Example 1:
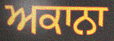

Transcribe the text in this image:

ਅਕਾਨਾ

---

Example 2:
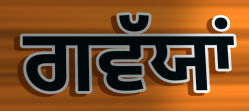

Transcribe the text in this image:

ਗਵੱਯਾਂ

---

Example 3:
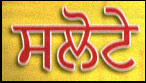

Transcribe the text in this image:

ਸਲੋਟੇ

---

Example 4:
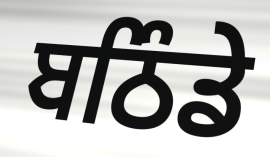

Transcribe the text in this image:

ਬਠਿੰਡੇ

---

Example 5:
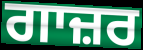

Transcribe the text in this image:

ਗਾਜ਼ਰ